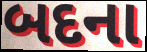
બદના